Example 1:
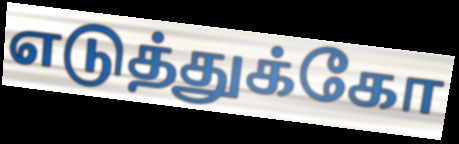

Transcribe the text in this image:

எடுத்துக்கோ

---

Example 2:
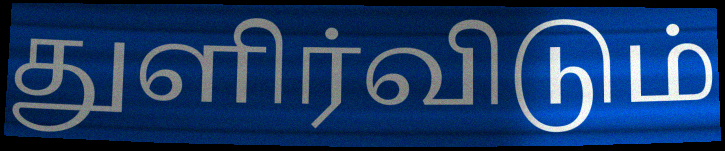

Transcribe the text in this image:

துளிர்விடும்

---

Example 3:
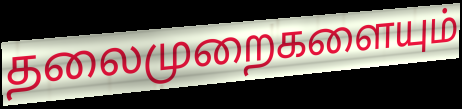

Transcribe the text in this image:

தலைமுறைகளையும்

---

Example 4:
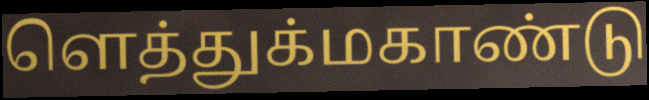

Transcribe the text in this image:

ளெத்துக்மகாண்டு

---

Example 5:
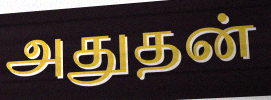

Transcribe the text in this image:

அதுதன்